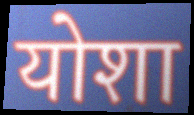
योशा